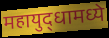
महायुद्धामध्ये